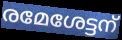
രമേശേട്ടന്